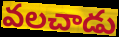
వలచాడు